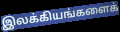
இலக்கியங்களைக்